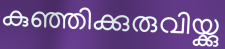
കുഞ്ഞിക്കുരുവിയ്ക്കു